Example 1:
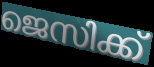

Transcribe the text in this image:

ജെസിക്ക്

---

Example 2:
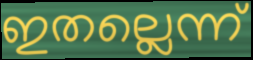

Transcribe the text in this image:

ഇതല്ലെന്ന്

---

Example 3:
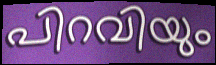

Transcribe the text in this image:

പിറവിയും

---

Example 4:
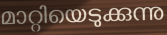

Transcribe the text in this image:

മാറ്റിയെടുക്കുന്നു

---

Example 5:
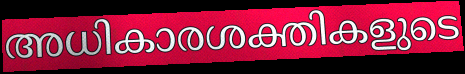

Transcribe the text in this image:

അധികാരശക്തികളുടെ